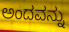
ಅಂದವನ್ನು